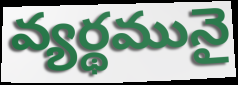
వ్యర్థమునై